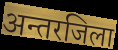
अन्तरजिला